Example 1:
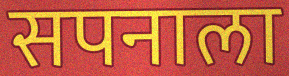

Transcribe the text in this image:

सपनाला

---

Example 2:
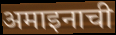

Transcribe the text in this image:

अमाइनाची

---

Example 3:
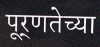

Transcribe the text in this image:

पूर्णतेच्या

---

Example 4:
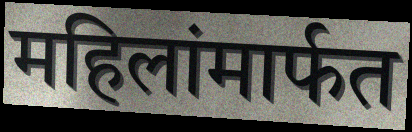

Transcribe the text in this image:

महिलांमार्फत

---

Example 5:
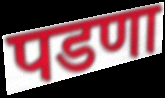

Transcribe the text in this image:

पडणा